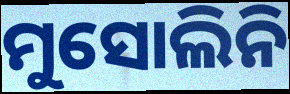
ମୁସୋଲିନି